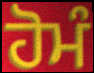
ਹੋਮੰ